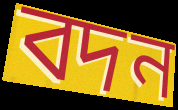
বদন